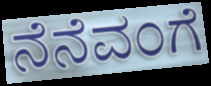
ನೆನೆವಂಗೆ